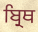
ਬ੍ਰਿਥ